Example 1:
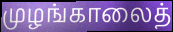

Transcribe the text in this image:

முழங்காலைத்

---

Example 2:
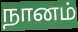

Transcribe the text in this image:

நானம்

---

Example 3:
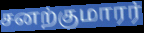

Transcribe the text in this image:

சனற்குமாரர்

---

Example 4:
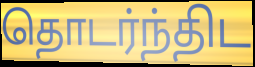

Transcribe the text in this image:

தொடர்ந்திட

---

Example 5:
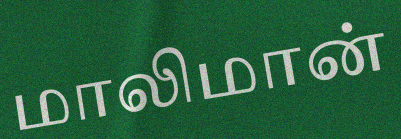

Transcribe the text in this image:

மாலிமான்